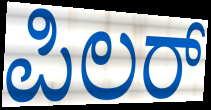
ಪಿಲರ್